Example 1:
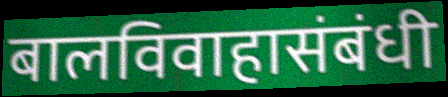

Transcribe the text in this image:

बालविवाहासंबंधी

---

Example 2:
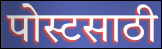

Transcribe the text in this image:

पोस्टसाठी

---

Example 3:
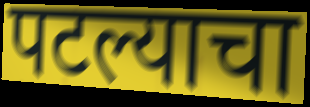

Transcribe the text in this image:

पटल्याचा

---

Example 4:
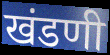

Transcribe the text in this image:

खंडणी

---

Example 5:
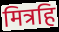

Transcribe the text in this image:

मित्रहि